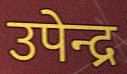
उपेन्द्र